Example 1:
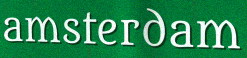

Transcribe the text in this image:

amsterdam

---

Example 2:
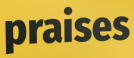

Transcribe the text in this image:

praises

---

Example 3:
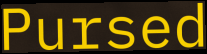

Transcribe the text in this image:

Pursed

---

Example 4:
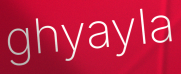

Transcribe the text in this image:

ghyayla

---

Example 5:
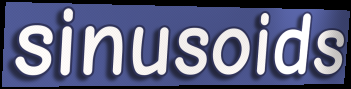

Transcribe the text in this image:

sinusoids